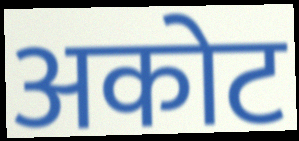
अकोट